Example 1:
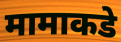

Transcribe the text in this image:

मामाकडे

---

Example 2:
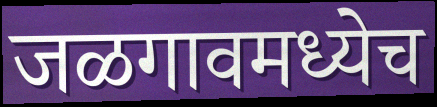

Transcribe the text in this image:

जळगावमध्येच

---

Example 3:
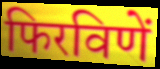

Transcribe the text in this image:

फिरविणें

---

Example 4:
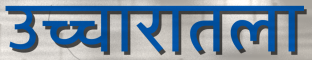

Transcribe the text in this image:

उच्चारातला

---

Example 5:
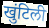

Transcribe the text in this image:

खुंटिली